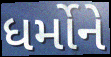
ધર્મોને